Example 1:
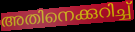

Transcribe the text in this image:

അതിനെക്കുറിച്ച്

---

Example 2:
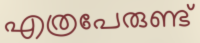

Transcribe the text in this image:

എത്രപേരുണ്ട്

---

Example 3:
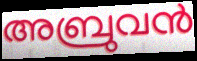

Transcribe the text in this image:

അബ്രുവൻ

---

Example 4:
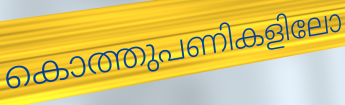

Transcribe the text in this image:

കൊത്തുപണികളിലോ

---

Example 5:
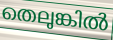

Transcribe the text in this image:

തെലുങ്കിൽ